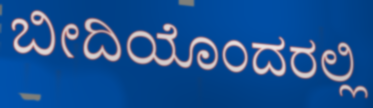
ಬೀದಿಯೊಂದರಲ್ಲಿ